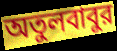
অতুলবাবুর